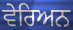
ਵੇਰਿਅਨ